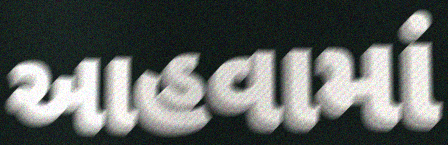
આહવામાં